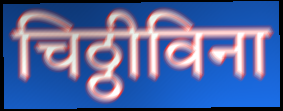
चिठ्ठीविना